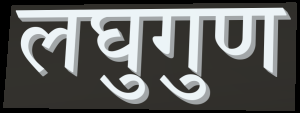
लघुगुण